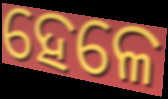
ହେଳେ